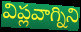
విప్లవాగ్నిని